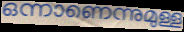
ഒന്നാണെന്നുമുള്ള